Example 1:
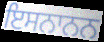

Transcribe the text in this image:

ਇਸਨਾਨਨ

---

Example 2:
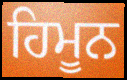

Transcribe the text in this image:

ਹਿਮੂਨ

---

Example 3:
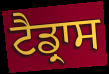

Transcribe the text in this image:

ਟੈਡ੍ਰਾਸ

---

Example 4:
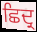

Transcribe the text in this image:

ਛਿਦ੍ਰ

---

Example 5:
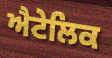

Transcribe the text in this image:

ਐਟੇਲਿਕ